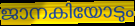
ജാനകിയോടും